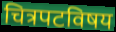
चित्रपटविषय